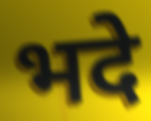
भदे